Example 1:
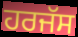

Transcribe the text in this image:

ਹਰਜੱਸ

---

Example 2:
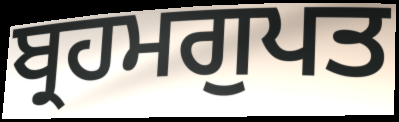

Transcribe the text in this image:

ਬ੍ਰਹਮਗੁਪਤ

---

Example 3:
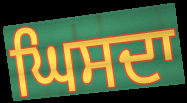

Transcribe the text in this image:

ਘਿਸਦਾ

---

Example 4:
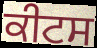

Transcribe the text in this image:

ਕੀਟਸ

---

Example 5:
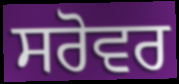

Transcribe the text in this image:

ਸਰੋਵਰ